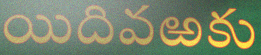
యిదివఱకు